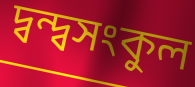
দ্বন্দ্বসংকুল